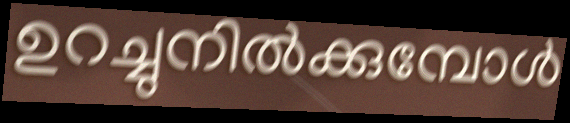
ഉറച്ചുനിൽക്കുമ്പോൾ